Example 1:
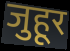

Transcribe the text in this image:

जुहूर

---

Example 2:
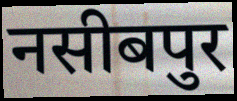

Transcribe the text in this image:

नसीबपुर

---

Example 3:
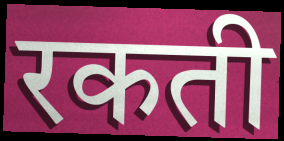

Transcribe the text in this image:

रकती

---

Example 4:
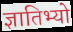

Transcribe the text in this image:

ज्ञातिभ्यो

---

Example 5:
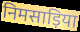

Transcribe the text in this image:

निमसाड़िया